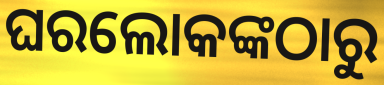
ଘରଲୋକଙ୍କଠାରୁ